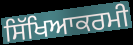
ਸਿੱਖਿਆਕਰਮੀ